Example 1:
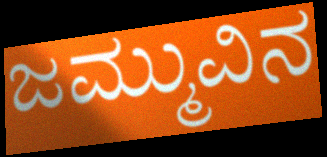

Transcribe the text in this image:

ಜಮ್ಮುವಿನ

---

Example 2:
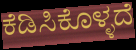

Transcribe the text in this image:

ಕೆಡಿಸಿಕೊಳ್ಳದೆ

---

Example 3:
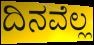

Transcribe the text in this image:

ದಿನವೆಲ್ಲ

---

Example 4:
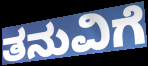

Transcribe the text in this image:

ತನುವಿಗೆ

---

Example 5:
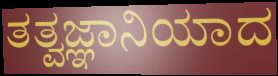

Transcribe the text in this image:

ತತ್ವಜ್ಞಾನಿಯಾದ